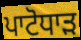
ਪਾਟੋਧਾੜ